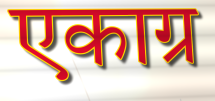
एकाग्र